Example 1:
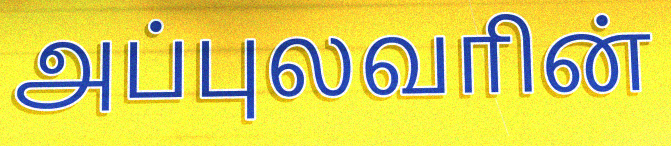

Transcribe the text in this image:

அப்புலவரின்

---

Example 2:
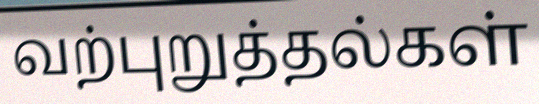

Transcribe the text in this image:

வற்புறுத்தல்கள்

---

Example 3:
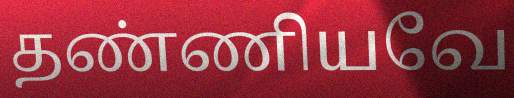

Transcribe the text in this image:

தண்ணியவே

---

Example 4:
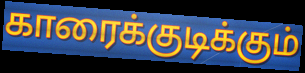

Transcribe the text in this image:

காரைக்குடிக்கும்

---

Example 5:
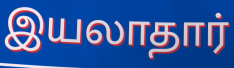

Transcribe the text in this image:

இயலாதார்